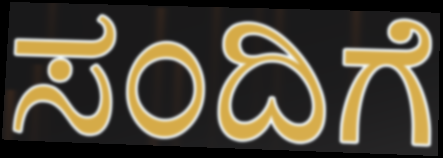
ಸಂದಿಗೆ